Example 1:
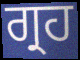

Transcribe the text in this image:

ਗ੍ਰਹ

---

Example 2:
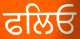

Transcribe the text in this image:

ਫਲਿਓ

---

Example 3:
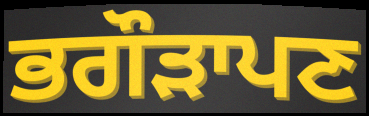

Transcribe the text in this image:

ਭਗੌੜਾਪਣ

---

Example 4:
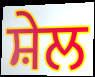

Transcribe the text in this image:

ਸ਼ੇਲ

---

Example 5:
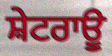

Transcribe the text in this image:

ਸ਼ੇਟਰਾਊ